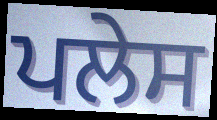
ਪਲੇਸ